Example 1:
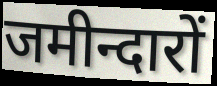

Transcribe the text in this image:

जमीन्दारों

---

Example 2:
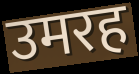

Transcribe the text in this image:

उमरह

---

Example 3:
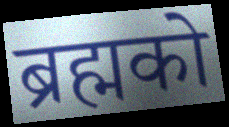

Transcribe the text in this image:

ब्रह्मको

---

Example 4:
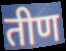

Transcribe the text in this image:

तीण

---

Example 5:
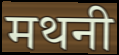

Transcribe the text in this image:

मथनी